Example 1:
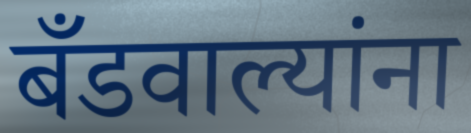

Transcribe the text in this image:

बँडवाल्यांना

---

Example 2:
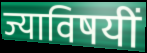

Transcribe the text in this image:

ज्याविषयीं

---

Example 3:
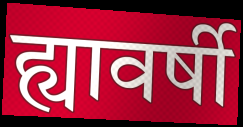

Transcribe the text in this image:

ह्यावर्षी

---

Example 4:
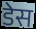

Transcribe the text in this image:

डेस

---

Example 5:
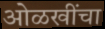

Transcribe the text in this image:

ओळखींचा